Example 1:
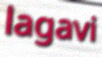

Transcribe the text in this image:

lagavi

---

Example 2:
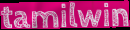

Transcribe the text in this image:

tamilwin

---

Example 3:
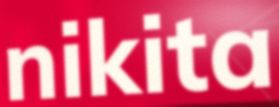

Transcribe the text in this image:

nikita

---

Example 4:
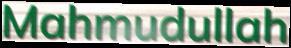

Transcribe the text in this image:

Mahmudullah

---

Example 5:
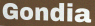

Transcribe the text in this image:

Gondia